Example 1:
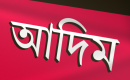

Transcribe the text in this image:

আদিম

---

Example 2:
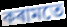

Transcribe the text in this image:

কৰামতে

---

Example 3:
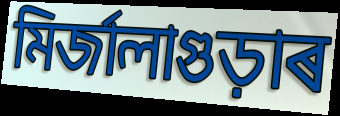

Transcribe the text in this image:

মিৰ্জালাগুড়াৰ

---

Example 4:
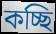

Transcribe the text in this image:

কচ্ছি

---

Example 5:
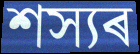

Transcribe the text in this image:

শস্যৰ